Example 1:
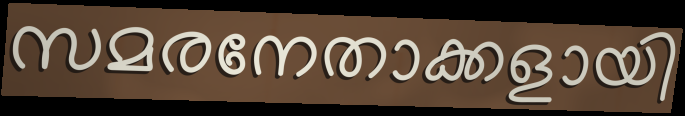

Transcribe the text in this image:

സമരനേതാക്കളായി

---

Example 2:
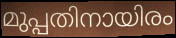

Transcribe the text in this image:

മുപ്പതിനായിരം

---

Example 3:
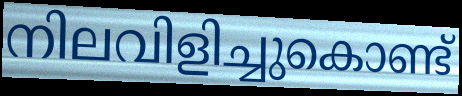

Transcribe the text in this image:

നിലവിളിച്ചുകൊണ്ട്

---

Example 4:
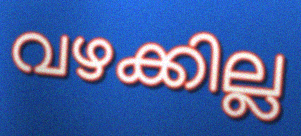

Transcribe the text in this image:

വഴക്കില്ല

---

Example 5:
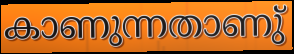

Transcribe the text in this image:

കാണുന്നതാണു്